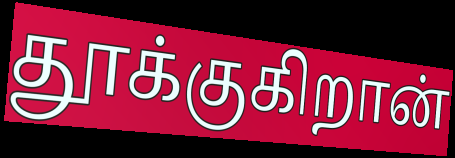
தூக்குகிறான்